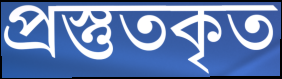
প্রস্তুতকৃত